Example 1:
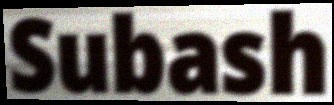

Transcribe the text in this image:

Subash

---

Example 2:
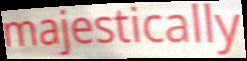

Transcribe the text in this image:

majestically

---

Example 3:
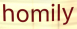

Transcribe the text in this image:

homily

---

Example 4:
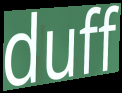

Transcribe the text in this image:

duff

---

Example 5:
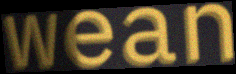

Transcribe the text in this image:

wean